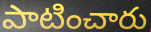
పాటించారు